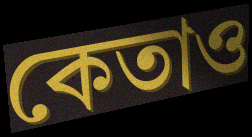
কেতাও